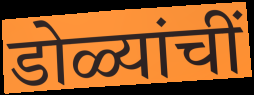
डोळ्यांचीं